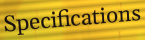
Specifications